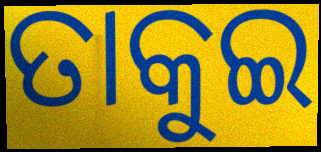
ତାକୁଇ